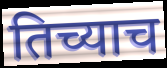
तिच्याच